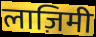
लाज़िमी